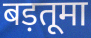
बड़तूमा